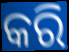
କରି